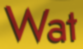
Wat